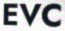
EVC